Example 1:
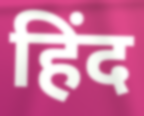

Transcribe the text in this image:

हिंद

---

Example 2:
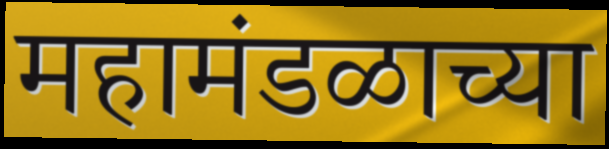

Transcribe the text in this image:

महामंडळाच्या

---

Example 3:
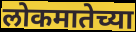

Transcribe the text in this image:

लोकमातेच्या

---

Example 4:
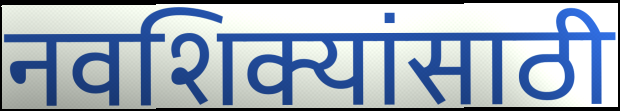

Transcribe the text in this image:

नवशिक्यांसाठी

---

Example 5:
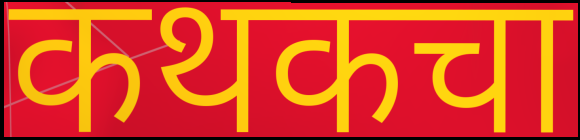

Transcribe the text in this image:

कथकचा